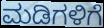
ಮಡಿಗಳಿಗೆ